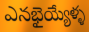
ఎనభైయ్యేళ్ళ